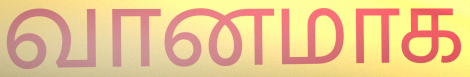
வானமாக